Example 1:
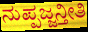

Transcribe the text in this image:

ನುಪ್ಪಜ್ಜನ್ತೀತಿ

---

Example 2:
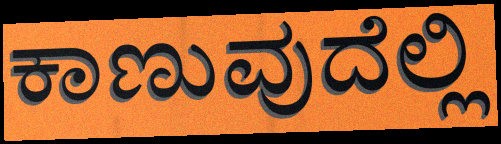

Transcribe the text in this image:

ಕಾಣುವುದೆಲ್ಲಿ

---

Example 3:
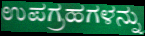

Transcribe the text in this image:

ಉಪಗ್ರಹಗಳನ್ನು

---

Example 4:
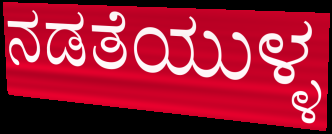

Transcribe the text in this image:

ನಡತೆಯುಳ್ಳ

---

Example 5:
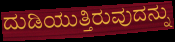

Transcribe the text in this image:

ದುಡಿಯುತ್ತಿರುವುದನ್ನು